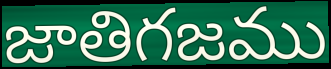
జాతిగజము